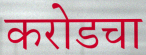
करोडचा